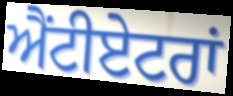
ਐਂਟੀਏਟਰਾਂ